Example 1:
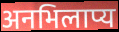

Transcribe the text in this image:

अनभिलाप्य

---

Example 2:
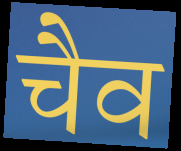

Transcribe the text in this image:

चैव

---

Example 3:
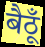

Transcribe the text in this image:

बैठूँ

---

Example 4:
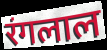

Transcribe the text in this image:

रंगलाल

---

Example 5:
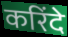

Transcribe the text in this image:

करिंदे